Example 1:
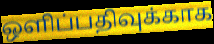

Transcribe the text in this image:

ஒளிப்பதிவுக்காக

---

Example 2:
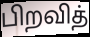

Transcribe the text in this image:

பிறவித்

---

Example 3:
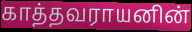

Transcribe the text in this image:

காத்தவராயனின்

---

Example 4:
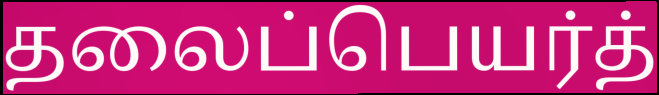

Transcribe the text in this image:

தலைப்பெயர்த்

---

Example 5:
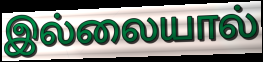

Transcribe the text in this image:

இல்லையால்